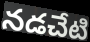
నడచేటి